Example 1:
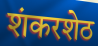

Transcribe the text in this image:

शंकरशेठ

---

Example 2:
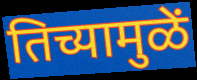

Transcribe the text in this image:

तिच्यामुळें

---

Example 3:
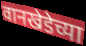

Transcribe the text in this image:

वानखेडेच्या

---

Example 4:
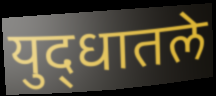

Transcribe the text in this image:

युद्धातले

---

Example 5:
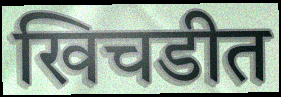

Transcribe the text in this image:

खिचडीत